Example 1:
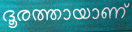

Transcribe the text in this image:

ദൂരത്തായാണ്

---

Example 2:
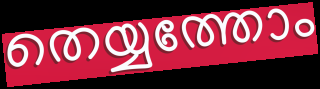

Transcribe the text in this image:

തെയ്യത്തോം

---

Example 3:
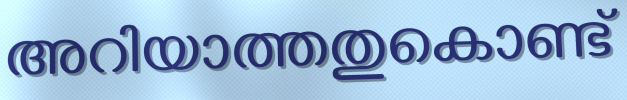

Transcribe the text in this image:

അറിയാത്തതുകൊണ്ട്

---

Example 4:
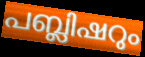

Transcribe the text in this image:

പബ്ലിഷറും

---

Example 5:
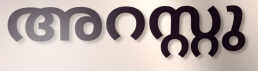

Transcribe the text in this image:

അറസ്റ്റു